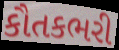
કૌતકભરી